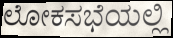
ಲೋಕಸಭೆಯಲ್ಲಿ